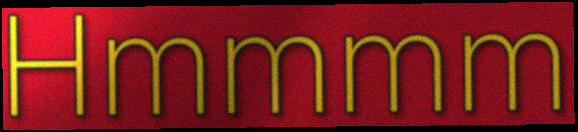
Hmmmm